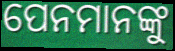
ପେନମାନଙ୍କୁ